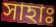
সাহাঃ